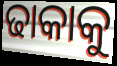
ଢାକାକୁ